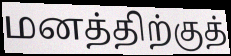
மனத்திற்குத்